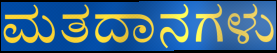
ಮತದಾನಗಳು